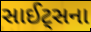
સાઈટ્સના